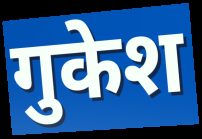
गुकेश